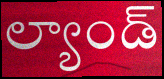
ల్యాండ్